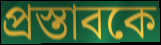
প্রস্তাবকে